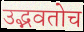
उद्भवतोच